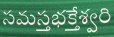
సమస్తభక్తేశ్వరి